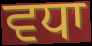
ਵਧਾ